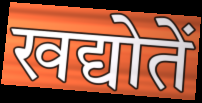
खद्योतें